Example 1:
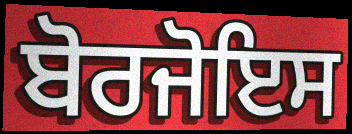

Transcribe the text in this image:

ਬੋਰਜੋਇਸ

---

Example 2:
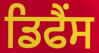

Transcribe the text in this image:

ਡਿਫੈਂਸ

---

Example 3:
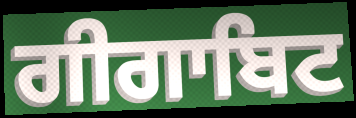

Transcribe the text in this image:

ਗੀਗਾਬਿਟ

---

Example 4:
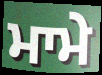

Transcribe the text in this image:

ਮਾਮੇ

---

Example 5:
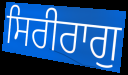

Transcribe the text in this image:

ਸਿਰੀਰਾਗੁ